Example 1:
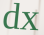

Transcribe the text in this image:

dx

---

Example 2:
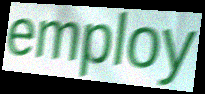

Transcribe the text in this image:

employ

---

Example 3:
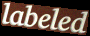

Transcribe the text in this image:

labeled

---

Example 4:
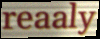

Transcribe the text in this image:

reaaly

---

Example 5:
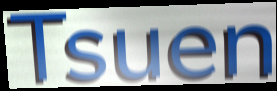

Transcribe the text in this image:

Tsuen